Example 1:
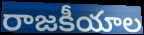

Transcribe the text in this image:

రాజకీయాల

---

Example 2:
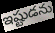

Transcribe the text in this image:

ఇష్టుడను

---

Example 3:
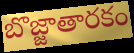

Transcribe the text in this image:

బొజ్జాతారకం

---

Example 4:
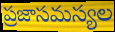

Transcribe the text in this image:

ప్రజాసమస్యల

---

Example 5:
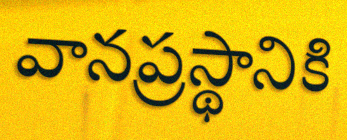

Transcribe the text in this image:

వానప్రస్థానికి